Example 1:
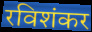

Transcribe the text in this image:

रविशंकर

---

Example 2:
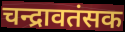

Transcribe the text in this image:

चन्द्रावतंसक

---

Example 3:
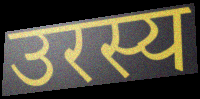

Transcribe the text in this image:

उरस्य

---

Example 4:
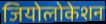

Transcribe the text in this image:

जियोलोकेशन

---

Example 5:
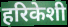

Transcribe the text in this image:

हरिकेशी